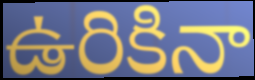
ఉరికినా